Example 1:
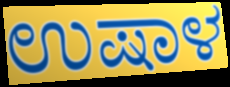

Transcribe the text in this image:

ಉಷಾಳ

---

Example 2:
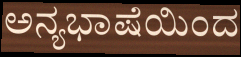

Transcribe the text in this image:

ಅನ್ಯಭಾಷೆಯಿಂದ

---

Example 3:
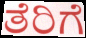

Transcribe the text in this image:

ತೆರಿಗೆ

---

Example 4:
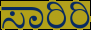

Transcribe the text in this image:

ಸಾರಿರಿ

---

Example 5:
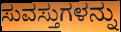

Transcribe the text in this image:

ಸುವಸ್ತುಗಳನ್ನು